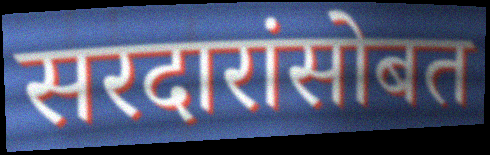
सरदारांसोबत